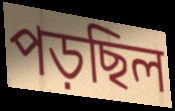
পড়ছিল